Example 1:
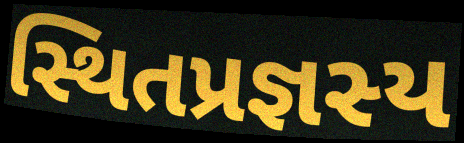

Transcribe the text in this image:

સ્થિતપ્રજ્ઞસ્ય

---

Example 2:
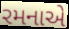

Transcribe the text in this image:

રમનાએ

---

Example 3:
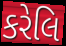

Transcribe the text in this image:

કરેલિ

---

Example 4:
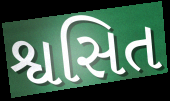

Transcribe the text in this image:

શ્વસિત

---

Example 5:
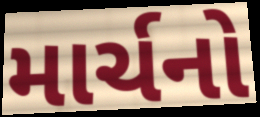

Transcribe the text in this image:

માર્ચનો